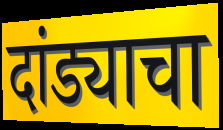
दांड्याचा